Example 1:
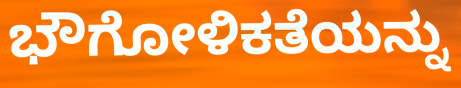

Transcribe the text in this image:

ಭೌಗೋಳಿಕತೆಯನ್ನು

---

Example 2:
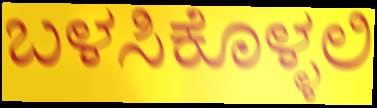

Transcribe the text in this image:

ಬಳಸಿಕೊಳ್ಳಲಿ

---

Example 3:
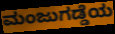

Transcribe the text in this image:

ಮಂಜುಗಡ್ಡೆಯ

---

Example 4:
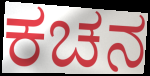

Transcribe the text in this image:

ಕಚನ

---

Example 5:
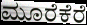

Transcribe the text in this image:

ಮೂರೆಕೆರೆ